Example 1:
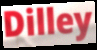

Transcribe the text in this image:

Dilley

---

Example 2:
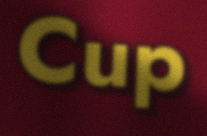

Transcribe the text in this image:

Cup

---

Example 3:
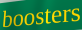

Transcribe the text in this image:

boosters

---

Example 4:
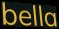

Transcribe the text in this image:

bella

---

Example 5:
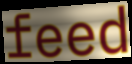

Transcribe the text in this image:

feed